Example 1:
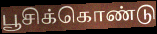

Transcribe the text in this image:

பூசிக்கொண்டு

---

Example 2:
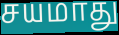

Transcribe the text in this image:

சயமாது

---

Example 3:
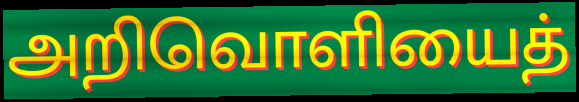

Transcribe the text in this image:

அறிவொளியைத்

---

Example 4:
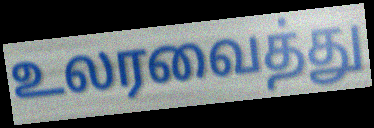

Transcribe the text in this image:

உலரவைத்து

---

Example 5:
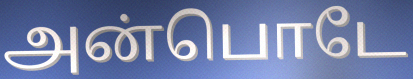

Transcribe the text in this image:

அன்பொடே